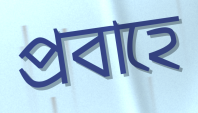
প্রবাহে